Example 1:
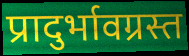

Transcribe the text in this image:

प्रादुर्भावग्रस्त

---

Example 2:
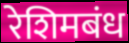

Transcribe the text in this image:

रेशिमबंध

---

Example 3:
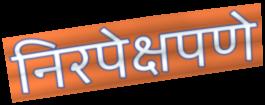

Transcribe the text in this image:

निरपेक्षपणे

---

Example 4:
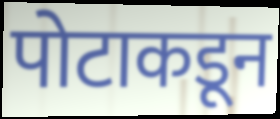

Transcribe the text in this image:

पोटाकडून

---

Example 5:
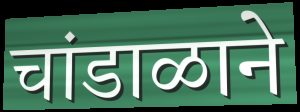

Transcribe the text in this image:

चांडाळाने